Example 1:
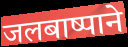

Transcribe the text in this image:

जलबाष्पाने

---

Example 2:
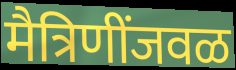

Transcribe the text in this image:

मैत्रिणींजवळ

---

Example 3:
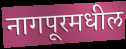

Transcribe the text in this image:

नागपूरमधील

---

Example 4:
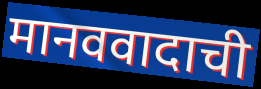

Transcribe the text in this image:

मानववादाची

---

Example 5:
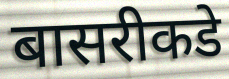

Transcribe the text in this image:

बासरीकडे